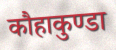
कौहाकुण्डा